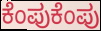
ಕೆಂಪುಕೆಂಪು